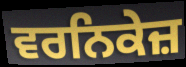
ਵਰਨਿਕੇਜ਼